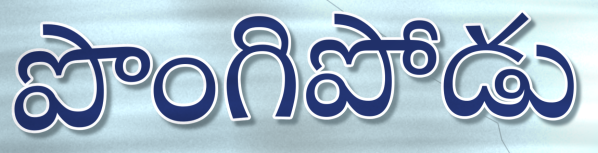
పొంగిపోడు